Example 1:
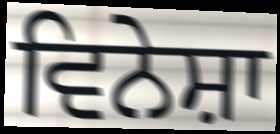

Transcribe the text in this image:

ਵਿਨੇਸ਼ਾ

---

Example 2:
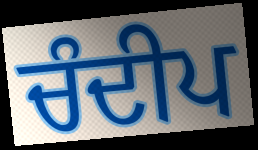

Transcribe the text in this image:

ਚੰਦੀਪ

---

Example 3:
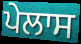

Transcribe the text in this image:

ਪੇਲਾਸ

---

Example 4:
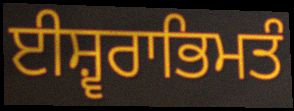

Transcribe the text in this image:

ਈਸ਼੍ਵਰਾਭਿਮਤੰ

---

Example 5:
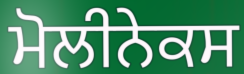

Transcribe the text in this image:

ਮੋਲੀਨੇਕਸ